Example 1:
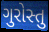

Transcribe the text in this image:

ગુરોસ્તુ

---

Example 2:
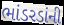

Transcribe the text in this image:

ભાંડરડાંની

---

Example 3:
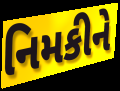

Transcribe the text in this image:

નિમકીને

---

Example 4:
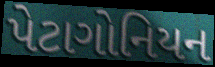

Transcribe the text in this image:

પેટાગોનિયન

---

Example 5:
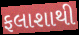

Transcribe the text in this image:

ફલાશાથી